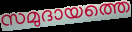
സമുദായത്തെ